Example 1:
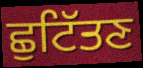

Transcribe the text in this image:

ਛੁਟਿੱਤਣ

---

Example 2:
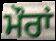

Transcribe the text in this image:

ਮੌਰਾਂ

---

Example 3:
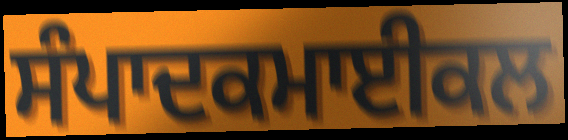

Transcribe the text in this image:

ਸੰਪਾਦਕਮਾਈਕਲ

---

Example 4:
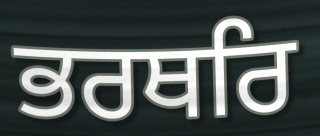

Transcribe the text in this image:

ਭਰਥਰਿ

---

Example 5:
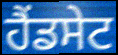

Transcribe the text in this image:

ਹੈਂਡਸੇਟ